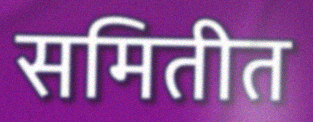
समितीत